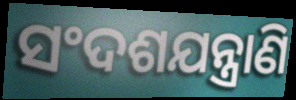
ସଂଦଶଯନ୍ତ୍ରାଣି